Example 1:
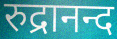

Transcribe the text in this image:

रुद्रानन्द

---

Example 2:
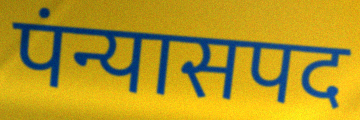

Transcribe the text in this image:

पंन्यासपद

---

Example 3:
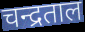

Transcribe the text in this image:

चन्द्रताल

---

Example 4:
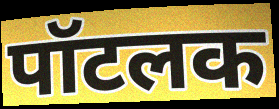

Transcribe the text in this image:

पॉटलक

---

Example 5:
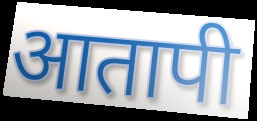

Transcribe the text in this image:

आतापी